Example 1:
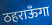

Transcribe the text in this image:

ठहराऊँगा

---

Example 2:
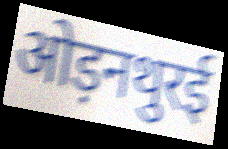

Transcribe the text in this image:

ओड़नथुरई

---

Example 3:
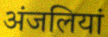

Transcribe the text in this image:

अंजलियां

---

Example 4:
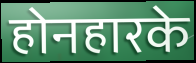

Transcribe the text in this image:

होनहारके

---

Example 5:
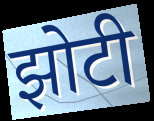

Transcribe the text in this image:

झोटी